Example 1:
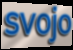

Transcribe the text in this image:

svojo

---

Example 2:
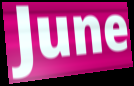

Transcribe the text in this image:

June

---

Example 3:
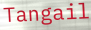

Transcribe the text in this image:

Tangail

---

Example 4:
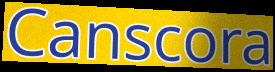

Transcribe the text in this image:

Canscora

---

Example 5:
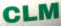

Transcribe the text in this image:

CLM